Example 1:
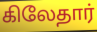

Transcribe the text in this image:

கிலேதார்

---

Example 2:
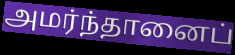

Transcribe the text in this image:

அமர்ந்தானைப்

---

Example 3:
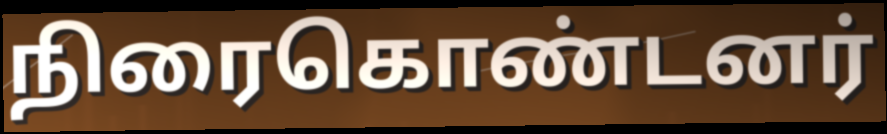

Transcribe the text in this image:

நிரைகொண்டனர்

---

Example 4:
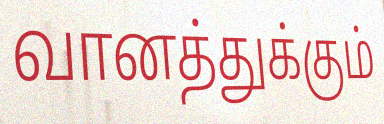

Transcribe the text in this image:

வானத்துக்கும்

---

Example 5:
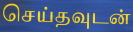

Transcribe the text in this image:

செய்தவுடன்